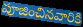
పూజించినవారికి